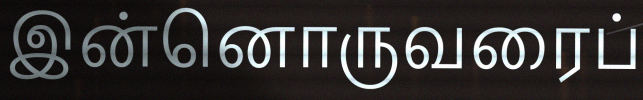
இன்னொருவரைப்